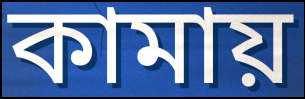
কামায়